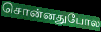
சொன்னதுபோல